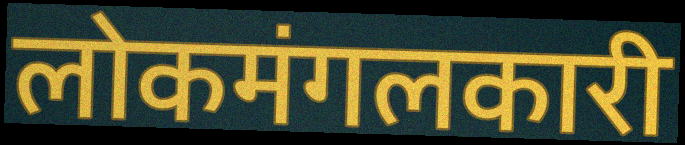
लोकमंगलकारी